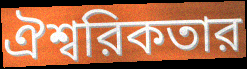
ঐশ্বরিকতার